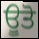
ਊਤੋ